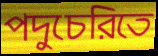
পদুচেরিতে